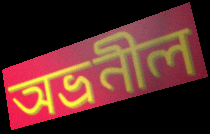
অভ্রনীল